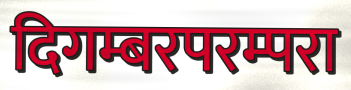
दिगम्बरपरम्परा